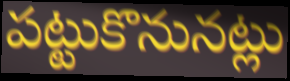
పట్టుకొనునట్లు